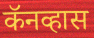
कॅनव्हास